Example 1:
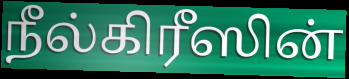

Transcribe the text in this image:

நீல்கிரீஸின்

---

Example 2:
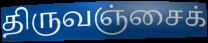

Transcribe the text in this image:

திருவஞ்சைக்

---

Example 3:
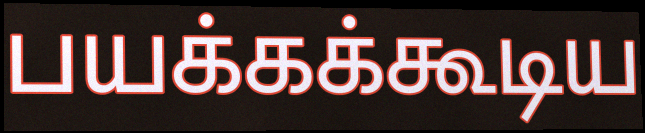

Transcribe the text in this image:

பயக்கக்கூடிய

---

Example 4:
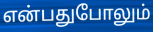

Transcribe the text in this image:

என்பதுபோலும்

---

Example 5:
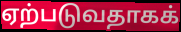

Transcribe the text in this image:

ஏற்படுவதாகக்